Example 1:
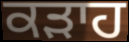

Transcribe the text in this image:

ਕੜਾਹ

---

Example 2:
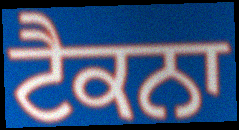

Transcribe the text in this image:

ਟੈਕਨਾ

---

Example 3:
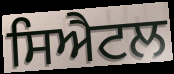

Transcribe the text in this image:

ਸਿਐਟਲ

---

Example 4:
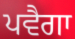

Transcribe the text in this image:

ਪਵੈਗਾ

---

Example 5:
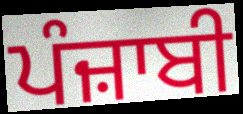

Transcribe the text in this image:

ਪੰਜ਼ਾਬੀ